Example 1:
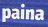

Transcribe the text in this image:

paina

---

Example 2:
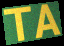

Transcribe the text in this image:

TA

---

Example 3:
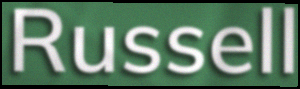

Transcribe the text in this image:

Russell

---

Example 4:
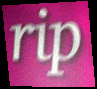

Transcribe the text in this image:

rip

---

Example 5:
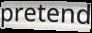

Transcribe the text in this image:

pretend